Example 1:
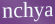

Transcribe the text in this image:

nchya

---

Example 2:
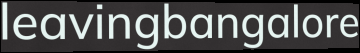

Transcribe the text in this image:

leavingbangalore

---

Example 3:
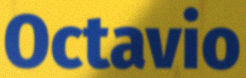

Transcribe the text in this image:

Octavio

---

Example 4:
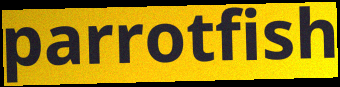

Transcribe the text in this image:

parrotfish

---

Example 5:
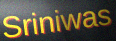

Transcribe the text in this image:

Sriniwas